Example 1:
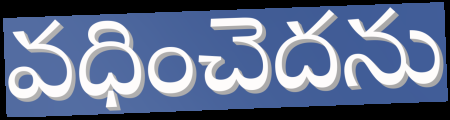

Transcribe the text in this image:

వధించెదను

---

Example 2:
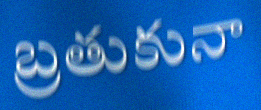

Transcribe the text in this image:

బ్రతుకునా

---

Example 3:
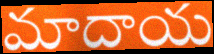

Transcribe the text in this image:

మాదాయ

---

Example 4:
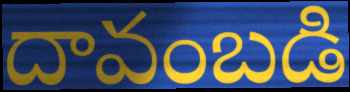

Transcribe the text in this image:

దావంబడి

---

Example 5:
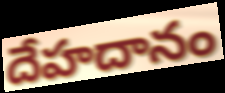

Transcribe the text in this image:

దేహదానం